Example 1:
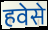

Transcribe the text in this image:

हवेसे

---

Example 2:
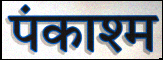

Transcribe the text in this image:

पंकाश्म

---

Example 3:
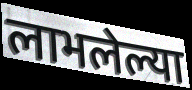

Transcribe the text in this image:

लाभलेल्या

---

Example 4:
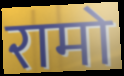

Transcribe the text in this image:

रामो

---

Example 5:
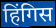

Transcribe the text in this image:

हिंगिस